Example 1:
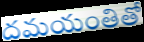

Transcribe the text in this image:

దమయంతితో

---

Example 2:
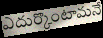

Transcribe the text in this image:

ఎదుర్కొంటామనే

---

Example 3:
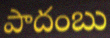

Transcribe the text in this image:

పాదంబు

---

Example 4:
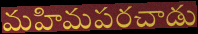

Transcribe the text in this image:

మహిమపరచాడు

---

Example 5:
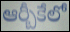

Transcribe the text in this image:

ఆర్బీకేలో